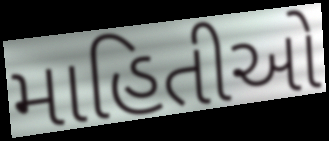
માહિતીઓ